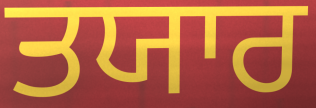
ਤਯਾਰ